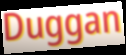
Duggan